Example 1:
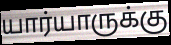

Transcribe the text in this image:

யார்யாருக்கு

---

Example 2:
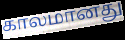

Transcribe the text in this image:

காலமானது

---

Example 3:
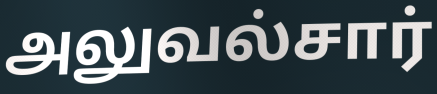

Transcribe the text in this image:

அலுவல்சார்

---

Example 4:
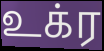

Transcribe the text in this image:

உக்ர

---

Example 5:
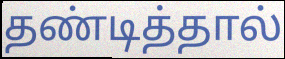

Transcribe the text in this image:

தண்டித்தால்